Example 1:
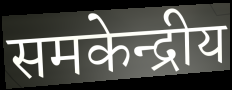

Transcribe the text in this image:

समकेन्द्रीय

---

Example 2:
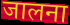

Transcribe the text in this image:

जालना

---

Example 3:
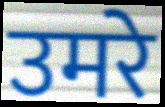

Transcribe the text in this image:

उमरे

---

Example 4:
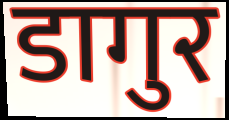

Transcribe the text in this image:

डागुर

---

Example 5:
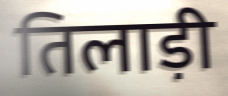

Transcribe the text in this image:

तिलाड़ी